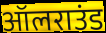
ऑलराउंड